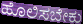
ಹೊಲಿಸಬೇಕು